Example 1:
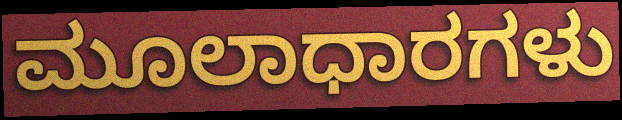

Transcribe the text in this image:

ಮೂಲಾಧಾರಗಳು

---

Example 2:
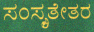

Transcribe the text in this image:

ಸಂಸ್ಕೃತೇತರ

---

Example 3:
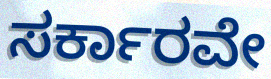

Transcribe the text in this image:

ಸರ್ಕಾರವೇ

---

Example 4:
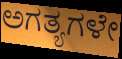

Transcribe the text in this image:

ಅಗತ್ಯಗಳೇ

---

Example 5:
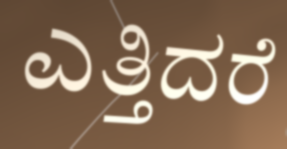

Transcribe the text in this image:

ಎತ್ತಿದರೆ